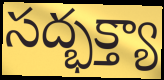
సద్భక్త్యా